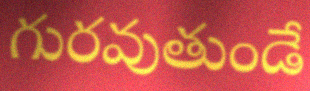
గురవుతుండే